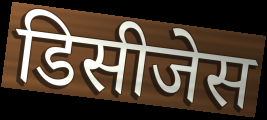
डिसीजेस